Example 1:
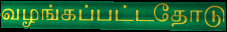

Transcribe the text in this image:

வழங்கப்பட்டதோடு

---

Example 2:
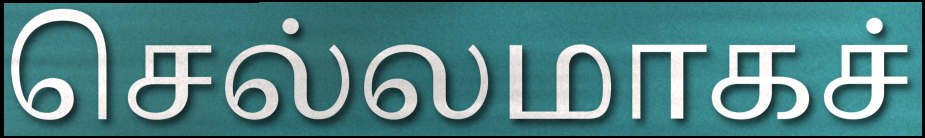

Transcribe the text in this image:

செல்லமாகச்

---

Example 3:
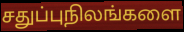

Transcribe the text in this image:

சதுப்புநிலங்களை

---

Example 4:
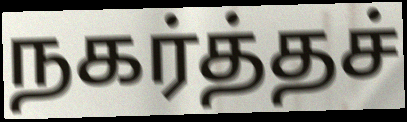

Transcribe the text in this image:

நகர்த்தச்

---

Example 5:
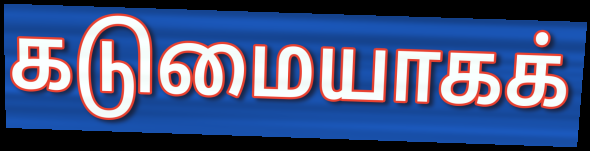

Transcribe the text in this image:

கடுமையாகக்